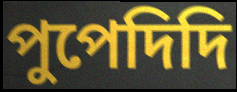
পুপেদিদি